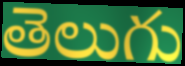
తెలుగు